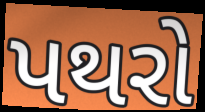
પથરો